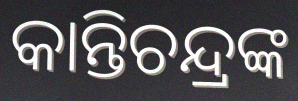
କାନ୍ତିଚନ୍ଦ୍ରଙ୍କ